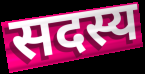
सदस्य